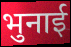
भुनाई